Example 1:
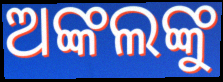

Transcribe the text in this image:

ଅଙ୍କଲଙ୍କୁ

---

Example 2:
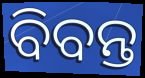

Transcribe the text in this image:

ବିବନ୍ତ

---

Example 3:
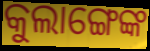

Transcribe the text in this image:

କୁଲାଙ୍ଗେଙ୍କ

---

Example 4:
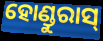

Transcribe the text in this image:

ହୋଣ୍ଡୁରାସ୍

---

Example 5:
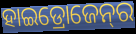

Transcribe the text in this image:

ହାଇଡ୍ରୋଜେନ୍‌ର